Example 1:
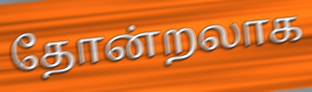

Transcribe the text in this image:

தோன்றலாக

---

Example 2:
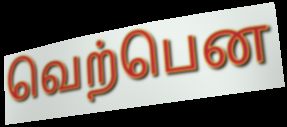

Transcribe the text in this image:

வெற்பென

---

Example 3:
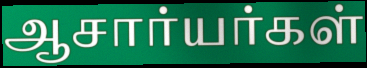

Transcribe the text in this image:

ஆசார்யர்கள்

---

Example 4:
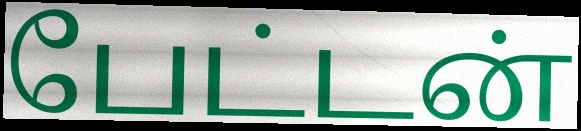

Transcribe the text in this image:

பேட்டன்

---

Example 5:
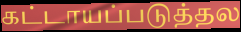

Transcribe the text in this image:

கட்டாயப்படுத்தல